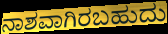
ನಾಶವಾಗಿರಬಹುದು